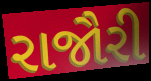
રાજૌરી